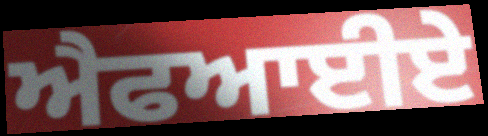
ਐਫਆਈਏ